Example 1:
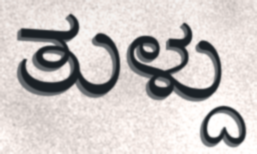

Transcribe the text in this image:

ತುಳ್ದು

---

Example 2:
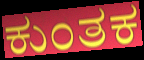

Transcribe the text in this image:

ಕುಂತಕ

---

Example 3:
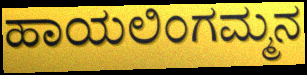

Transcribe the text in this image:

ಹಾಯಲಿಂಗಮ್ಮನ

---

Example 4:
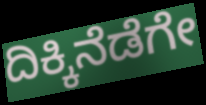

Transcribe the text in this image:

ದಿಕ್ಕಿನೆಡೆಗೇ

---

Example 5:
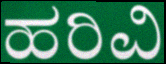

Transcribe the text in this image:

ಹರಿವಿ